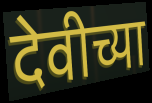
देवीच्या